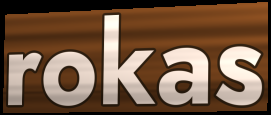
rokas